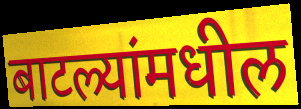
बाटल्यांमधील